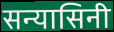
सन्यासिनी